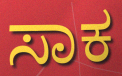
ಸಾಕ